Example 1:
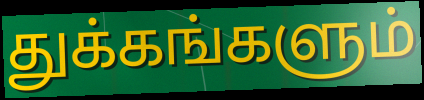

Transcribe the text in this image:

துக்கங்களும்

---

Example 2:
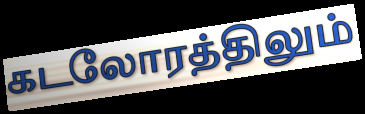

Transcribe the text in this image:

கடலோரத்திலும்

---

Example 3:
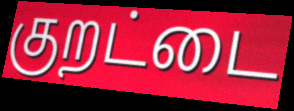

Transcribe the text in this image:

குறட்டை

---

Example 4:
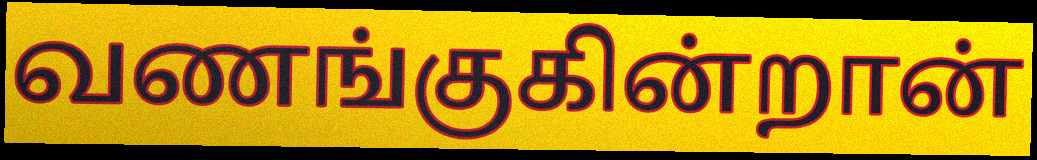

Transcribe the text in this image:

வணங்குகின்றான்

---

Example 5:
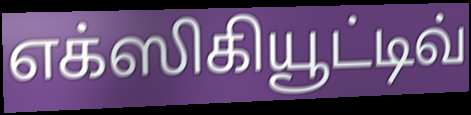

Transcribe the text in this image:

எக்ஸிகியூட்டிவ்